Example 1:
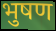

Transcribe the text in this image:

भुषण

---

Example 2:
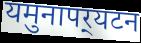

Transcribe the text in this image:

यमुनापर्यटन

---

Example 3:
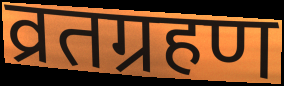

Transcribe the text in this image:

व्रतग्रहण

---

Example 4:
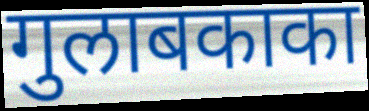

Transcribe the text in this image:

गुलाबकाका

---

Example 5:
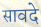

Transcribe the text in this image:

सावदे